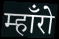
म्हाँरो